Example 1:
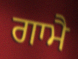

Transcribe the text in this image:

ਗਾਮੈ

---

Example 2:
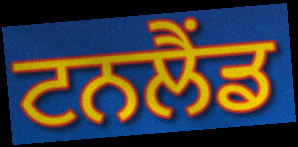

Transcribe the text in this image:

ਟਨਲੈਂਡ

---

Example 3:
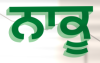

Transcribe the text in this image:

ਨਾਕੂ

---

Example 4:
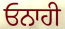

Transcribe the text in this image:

ਓਨਾਹੀ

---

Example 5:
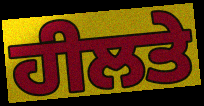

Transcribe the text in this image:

ਹੀਲਤੇ